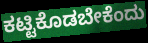
ಕಟ್ಟಿಕೊಡಬೇಕೆಂದು